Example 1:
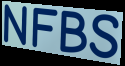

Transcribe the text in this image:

NFBS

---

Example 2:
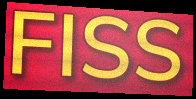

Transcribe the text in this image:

FISS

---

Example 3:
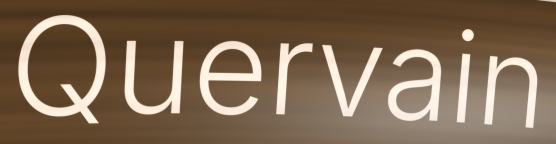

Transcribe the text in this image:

Quervain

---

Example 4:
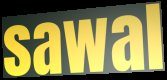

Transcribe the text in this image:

sawal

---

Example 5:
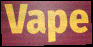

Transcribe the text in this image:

Vape